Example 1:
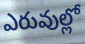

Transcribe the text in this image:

ఎరువుల్లో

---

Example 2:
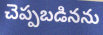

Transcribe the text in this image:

చెప్పబడినను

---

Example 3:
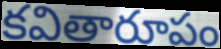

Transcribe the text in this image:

కవితారూపం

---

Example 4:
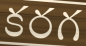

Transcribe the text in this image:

కరగ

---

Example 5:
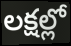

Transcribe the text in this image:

లక్షల్లో